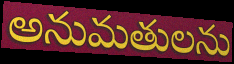
అనుమతులను